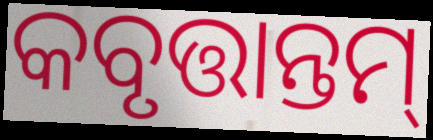
କବୃତ୍ତାନ୍ତମ୍